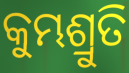
କୁମ୍ଭଶ୍ରୁତି